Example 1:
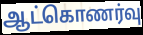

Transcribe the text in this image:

ஆட்கொணர்வு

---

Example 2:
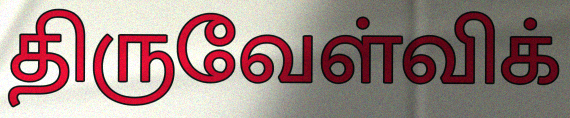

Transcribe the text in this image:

திருவேள்விக்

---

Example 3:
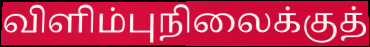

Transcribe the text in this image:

விளிம்புநிலைக்குத்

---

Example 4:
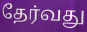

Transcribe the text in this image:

தேர்வது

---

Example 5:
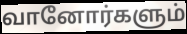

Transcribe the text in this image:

வானோர்களும்